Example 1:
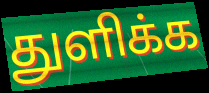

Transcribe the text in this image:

துளிக்க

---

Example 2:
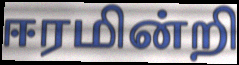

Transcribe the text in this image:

ஈரமின்றி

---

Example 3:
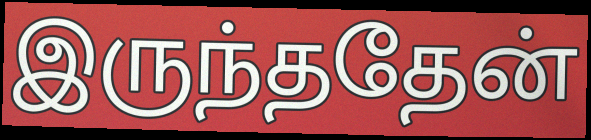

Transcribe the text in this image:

இருந்ததேன்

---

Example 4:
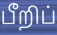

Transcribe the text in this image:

பீறிப்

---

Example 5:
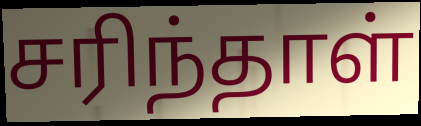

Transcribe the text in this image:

சரிந்தாள்